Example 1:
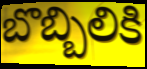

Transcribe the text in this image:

బొబ్బిలికి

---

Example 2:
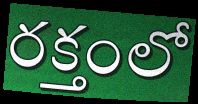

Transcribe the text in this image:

రక్తంలో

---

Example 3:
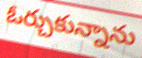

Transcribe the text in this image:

ఓర్చుకున్నాను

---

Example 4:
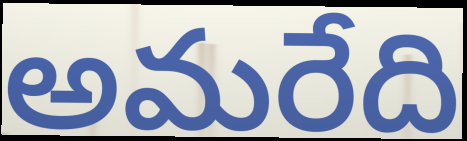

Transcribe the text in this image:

అమరేది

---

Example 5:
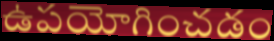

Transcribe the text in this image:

ఉపయోగించడం